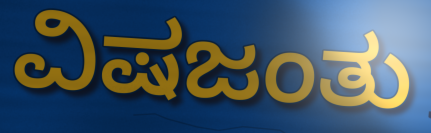
ವಿಷಜಂತು